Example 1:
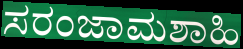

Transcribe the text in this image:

ಸರಂಜಾಮಶಾಹಿ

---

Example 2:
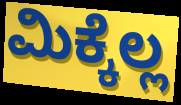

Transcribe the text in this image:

ಮಿಕ್ಕೆಲ್ಲ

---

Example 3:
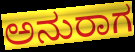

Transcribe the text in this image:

ಅನುರಾಗ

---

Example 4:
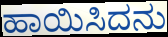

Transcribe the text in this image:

ಹಾಯಿಸಿದನು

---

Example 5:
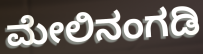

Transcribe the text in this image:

ಮೇಲಿನಂಗಡಿ